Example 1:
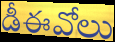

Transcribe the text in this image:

డీఈవోలు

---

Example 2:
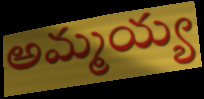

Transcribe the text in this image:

అమ్మయ్య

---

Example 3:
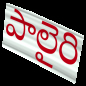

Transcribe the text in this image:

పాలైరి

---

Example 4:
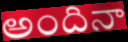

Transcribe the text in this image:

అందినా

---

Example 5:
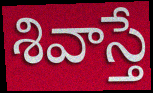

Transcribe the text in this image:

శివాస్తే